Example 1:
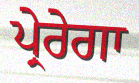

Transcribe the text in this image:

ਪ੍ਰੇਰੇਗਾ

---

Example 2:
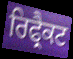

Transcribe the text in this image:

ਰਿਫ੍ਰੈਕਟ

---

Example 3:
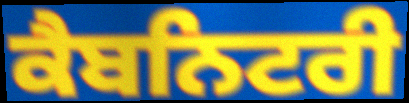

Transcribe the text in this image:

ਕੈਬਨਿਟਰੀ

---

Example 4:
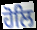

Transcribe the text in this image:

ਹੋਲਿ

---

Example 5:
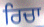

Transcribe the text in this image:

ਰਿਚਾ